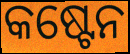
କଷ୍ଟେନ